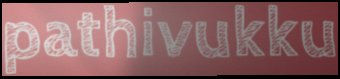
pathivukku